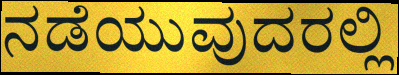
ನಡೆಯುವುದರಲ್ಲಿ